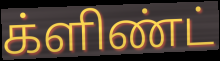
க்ளிண்ட்